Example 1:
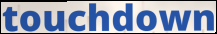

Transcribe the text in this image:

touchdown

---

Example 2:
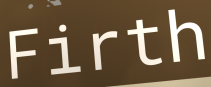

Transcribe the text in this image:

Firth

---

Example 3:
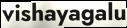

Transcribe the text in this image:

vishayagalu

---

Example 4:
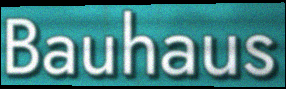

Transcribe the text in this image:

Bauhaus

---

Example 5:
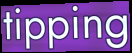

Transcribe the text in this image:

tipping